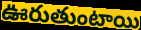
ఊరుతుంటాయి